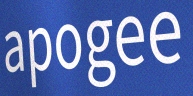
apogee